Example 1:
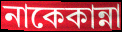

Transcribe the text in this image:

নাকেকান্না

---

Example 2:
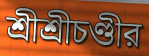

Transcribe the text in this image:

শ্রীশ্রীচণ্ডীর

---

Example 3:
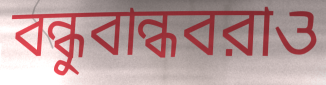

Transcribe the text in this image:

বন্ধুবান্ধবরাও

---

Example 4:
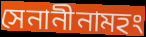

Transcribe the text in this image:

সেনানীনামহং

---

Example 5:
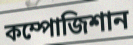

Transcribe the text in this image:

কম্পোজিশান